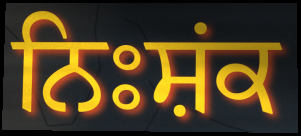
ਨਿਃਸ਼ਂਕ